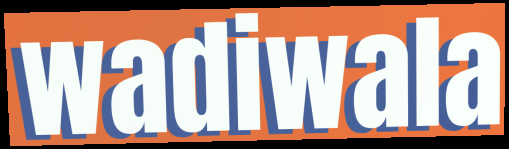
wadiwala